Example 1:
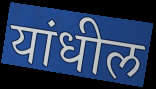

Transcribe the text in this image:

यांधील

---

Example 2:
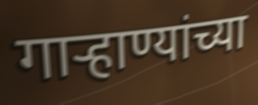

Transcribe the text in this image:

गाऱ्हाण्यांच्या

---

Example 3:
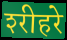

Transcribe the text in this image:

श्रीहरे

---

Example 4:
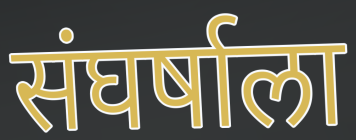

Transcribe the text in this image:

संघर्षाला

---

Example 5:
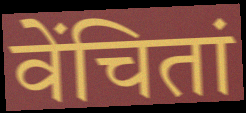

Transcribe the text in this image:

वेंचितां